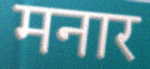
मनार